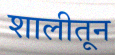
शालीतून